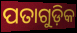
ପତାଗୁଡ଼ିକ